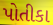
પોતીકા